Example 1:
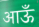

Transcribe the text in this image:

आऊँ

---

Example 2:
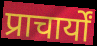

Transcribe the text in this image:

प्राचार्यों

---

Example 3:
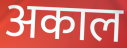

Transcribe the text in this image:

अकाल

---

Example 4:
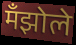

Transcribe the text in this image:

मँझोले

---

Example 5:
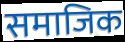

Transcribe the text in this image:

समाजिक